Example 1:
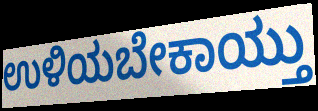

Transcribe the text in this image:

ಉಳಿಯಬೇಕಾಯ್ತು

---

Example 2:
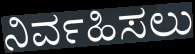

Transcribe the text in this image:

ನಿರ್ವಹಿಸಲು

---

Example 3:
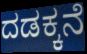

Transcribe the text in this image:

ದಡಕ್ಕನೆ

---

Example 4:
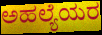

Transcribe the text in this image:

ಅಹಲ್ಯೆಯರ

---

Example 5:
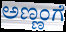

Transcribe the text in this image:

ಅಣ್ಣಂಗೆ